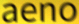
aeno